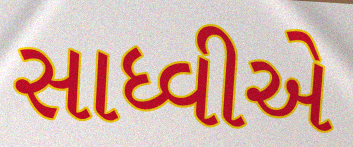
સાધ્વીએ